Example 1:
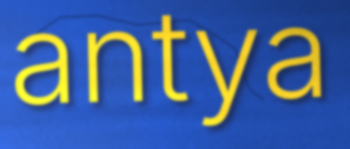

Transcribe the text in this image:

antya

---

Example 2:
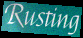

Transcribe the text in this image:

Rusting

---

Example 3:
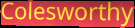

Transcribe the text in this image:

Colesworthy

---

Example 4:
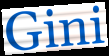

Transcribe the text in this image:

Gini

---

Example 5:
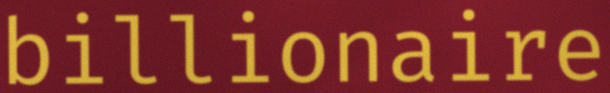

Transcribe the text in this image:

billionaire